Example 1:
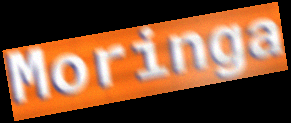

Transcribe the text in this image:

Moringa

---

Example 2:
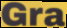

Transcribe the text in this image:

Gra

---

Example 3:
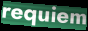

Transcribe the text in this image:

requiem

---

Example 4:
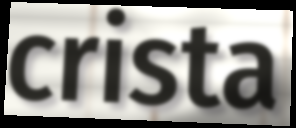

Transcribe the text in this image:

crista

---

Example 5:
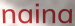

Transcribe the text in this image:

naina